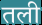
तली